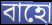
বাহো